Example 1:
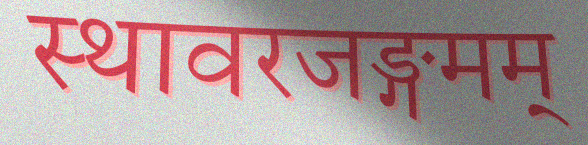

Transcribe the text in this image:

स्थावरजङ्गमम्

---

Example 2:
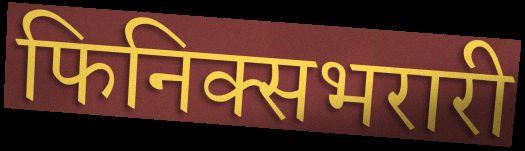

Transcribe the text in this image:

फिनिक्सभरारी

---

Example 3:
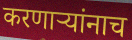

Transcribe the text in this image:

करणार्‍यांनाच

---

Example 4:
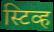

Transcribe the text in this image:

स्टिव्ह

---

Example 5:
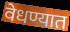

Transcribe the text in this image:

वेधण्यात